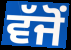
ਵੱਜੋਂ